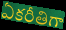
ఏకరీతిగా